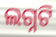
ଲଗ୍ନଟି